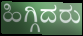
ಹಿಗ್ಗಿದರು